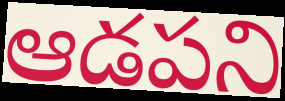
ఆడపని